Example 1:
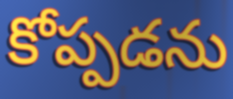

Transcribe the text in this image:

కోప్పడను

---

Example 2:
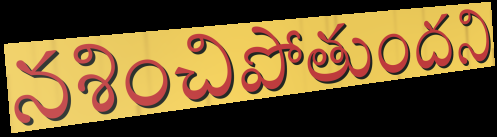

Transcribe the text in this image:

నశించిపోతుందని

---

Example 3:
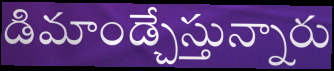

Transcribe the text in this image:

డిమాండ్చేస్తున్నారు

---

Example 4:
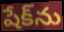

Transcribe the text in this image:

షేక్‌ను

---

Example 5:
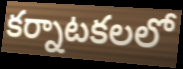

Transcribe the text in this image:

కర్నాటకలలో